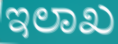
ಇಲಾಖ